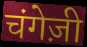
चंगेज़ी